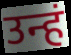
उन्हं